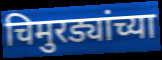
चिमुरड्यांच्या